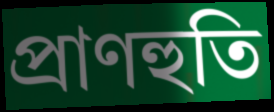
প্ৰাণহুতি